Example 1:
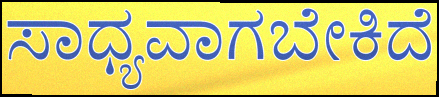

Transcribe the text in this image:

ಸಾಧ್ಯವಾಗಬೇಕಿದೆ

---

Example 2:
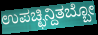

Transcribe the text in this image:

ಉಪಚ್ಛಿನ್ದಿತಬ್ಬೋ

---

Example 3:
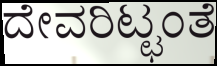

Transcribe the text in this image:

ದೇವರಿಟ್ಟಂತೆ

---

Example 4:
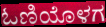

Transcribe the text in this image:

ಓಣಿಯೊಳಗ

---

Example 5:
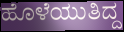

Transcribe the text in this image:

ಹೊಳೆಯುತಿದ್ದ